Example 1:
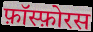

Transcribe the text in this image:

फ़ॉस्फ़ोरस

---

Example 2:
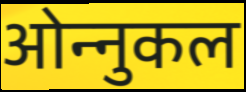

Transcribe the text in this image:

ओन्नुकल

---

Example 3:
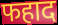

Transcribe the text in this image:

फहाद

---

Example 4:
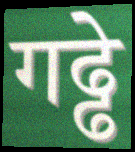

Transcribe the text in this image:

गढ्ढे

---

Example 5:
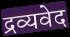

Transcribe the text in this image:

द्रव्यवेद